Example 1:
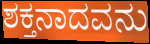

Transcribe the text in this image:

ಶಕ್ತನಾದವನು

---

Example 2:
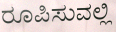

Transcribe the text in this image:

ರೂಪಿಸುವಲ್ಲಿ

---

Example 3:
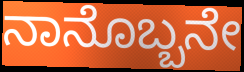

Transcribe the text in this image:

ನಾನೊಬ್ಬನೇ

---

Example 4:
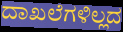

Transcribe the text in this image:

ದಾಖಲೆಗಳಿಲ್ಲದ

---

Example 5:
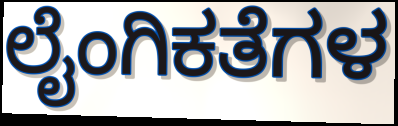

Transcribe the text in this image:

ಲೈಂಗಿಕತೆಗಳ